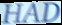
HAD